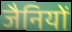
जैनियों